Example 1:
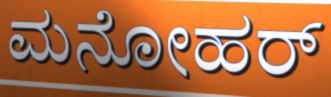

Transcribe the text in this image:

ಮನೋಹರ್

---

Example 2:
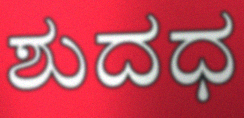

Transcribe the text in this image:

ಶುದಧ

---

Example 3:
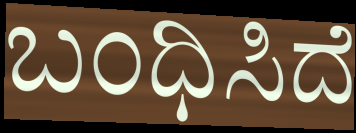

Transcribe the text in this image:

ಬಂಧಿಸಿದೆ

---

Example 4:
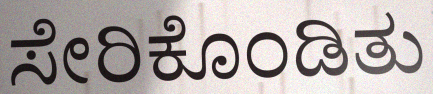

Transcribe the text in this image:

ಸೇರಿಕೊಂಡಿತು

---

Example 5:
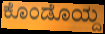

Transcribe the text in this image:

ಕೊಂಡೊಯ್ದ